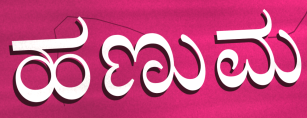
ಹಣುಮ